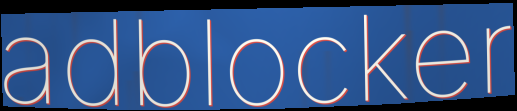
adblocker